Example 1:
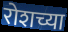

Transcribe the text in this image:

रोशच्या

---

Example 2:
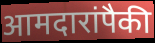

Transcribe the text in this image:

आमदारांपैकी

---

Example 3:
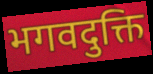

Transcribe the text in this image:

भगवदुक्ति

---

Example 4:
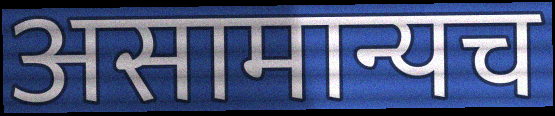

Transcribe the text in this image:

असामान्यच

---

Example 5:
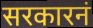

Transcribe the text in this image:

सरकारनं